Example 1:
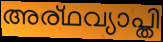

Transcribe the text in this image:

അര്ഥവ്യാപ്തി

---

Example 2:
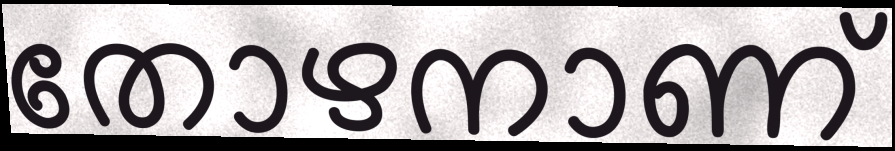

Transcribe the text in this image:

തോഴനാണ്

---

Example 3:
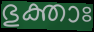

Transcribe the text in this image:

ഭുക്താഃ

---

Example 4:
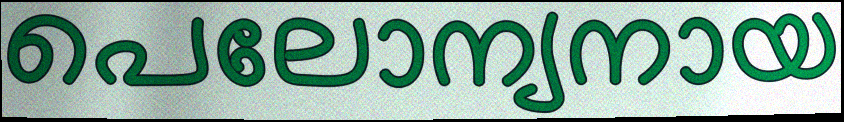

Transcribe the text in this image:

പെലോന്യനായ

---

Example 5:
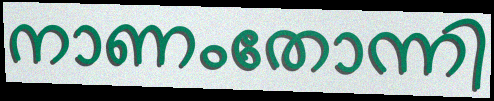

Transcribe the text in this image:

നാണംതോന്നി